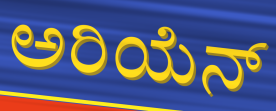
ಅರಿಯೆನ್